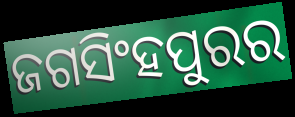
ଜଗସିଂହପୁରର